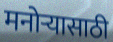
मनोऱ्यासाठी